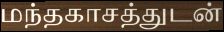
மந்தகாசத்துடன்